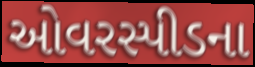
ઓવરસ્પીડના